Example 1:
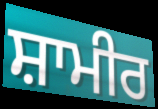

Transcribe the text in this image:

ਸ਼ਾਮੀਰ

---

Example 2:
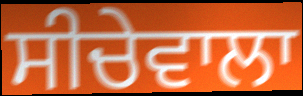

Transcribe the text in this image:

ਸੀਚੇਵਾਲਾ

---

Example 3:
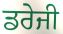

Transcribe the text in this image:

ਡਰੇਜੀ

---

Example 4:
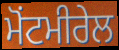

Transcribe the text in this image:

ਮੋਂਟਮੀਰੇਲ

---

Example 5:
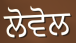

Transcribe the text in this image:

ਲੋਵੋਲ